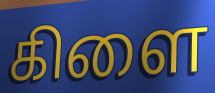
கிளை